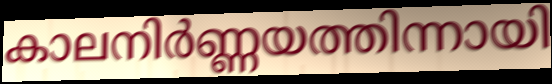
കാലനിർണ്ണയത്തിന്നായി